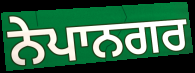
ਨੇਪਾਨਗਰ